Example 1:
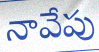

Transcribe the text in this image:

నావేపు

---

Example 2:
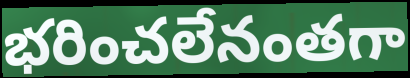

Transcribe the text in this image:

భరించలేనంతగా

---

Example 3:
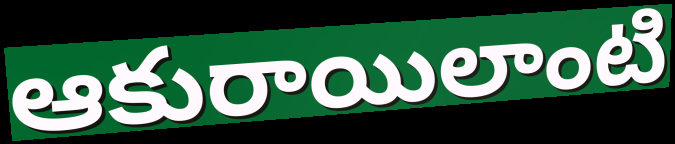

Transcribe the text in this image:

ఆకురాయిలాంటి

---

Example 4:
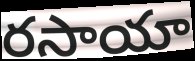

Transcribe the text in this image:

రసాయా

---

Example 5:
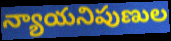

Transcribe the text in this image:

న్యాయనిపుణుల